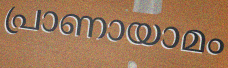
പ്രാണായാമം